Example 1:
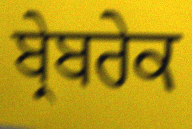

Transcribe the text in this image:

ਬ੍ਰੇਬਰੇਕ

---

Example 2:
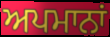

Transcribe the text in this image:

ਅਪਮਾਨਾਂ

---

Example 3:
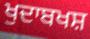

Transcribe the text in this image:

ਖੁਦਾਬਖਸ਼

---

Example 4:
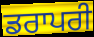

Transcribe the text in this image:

ਡਰਾਪਰੀ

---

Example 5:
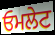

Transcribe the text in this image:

ਓਮਲੇਟ